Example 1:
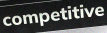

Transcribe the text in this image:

competitive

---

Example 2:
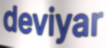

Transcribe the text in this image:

deviyar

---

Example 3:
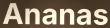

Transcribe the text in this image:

Ananas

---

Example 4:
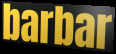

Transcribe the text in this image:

barbar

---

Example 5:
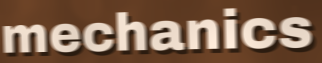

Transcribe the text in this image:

mechanics